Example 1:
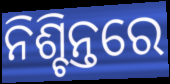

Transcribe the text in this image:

ନିଶ୍ଚିନ୍ତରେ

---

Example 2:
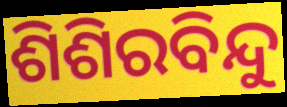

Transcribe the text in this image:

ଶିଶିରବିନ୍ଦୁ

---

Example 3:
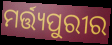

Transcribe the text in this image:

ମର୍ତ୍ତ୍ୟପୁରୀର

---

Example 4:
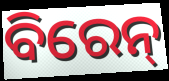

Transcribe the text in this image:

ବିରେନ୍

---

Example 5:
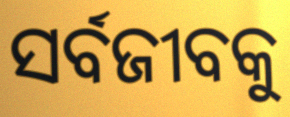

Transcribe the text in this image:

ସର୍ବଜୀବକୁ